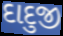
દાદુજી